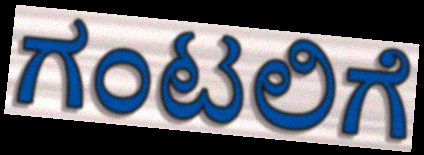
ಗಂಟಲಿಗೆ